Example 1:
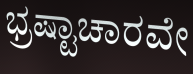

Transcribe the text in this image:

ಭ್ರಷ್ಟಾಚಾರವೇ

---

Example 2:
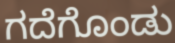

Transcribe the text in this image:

ಗದೆಗೊಂಡು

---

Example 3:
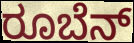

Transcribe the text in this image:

ರೂಬೆನ್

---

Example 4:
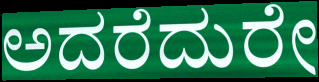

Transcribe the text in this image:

ಅದರೆದುರೇ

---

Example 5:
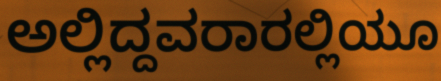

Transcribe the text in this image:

ಅಲ್ಲಿದ್ದವರಾರಲ್ಲಿಯೂ